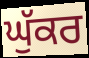
ਘੁੱਕਰ